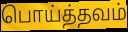
பொய்த்தவம்